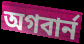
অগবার্ন